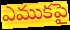
ఎముకపై